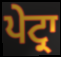
ਪੇਟ੍ਰਾ